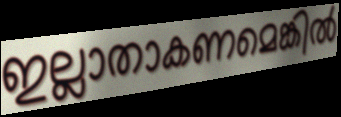
ഇല്ലാതാകണമെങ്കിൽ